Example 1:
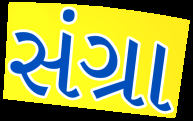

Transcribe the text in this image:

સંગ્રા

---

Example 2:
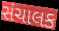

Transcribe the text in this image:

સંચાલક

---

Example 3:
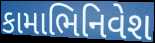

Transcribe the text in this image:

કામાભિનિવેશ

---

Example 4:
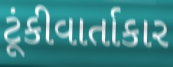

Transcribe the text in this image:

ટૂંકીવાર્તાકાર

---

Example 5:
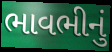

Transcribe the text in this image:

ભાવભીનું